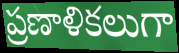
ప్రణాళికలుగా